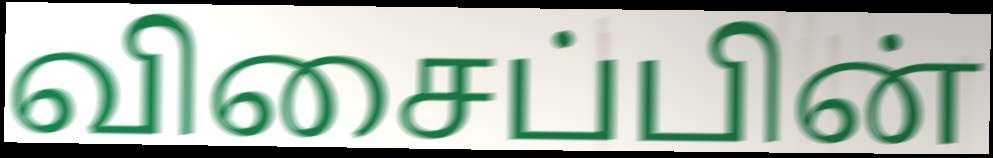
விசைப்பின்